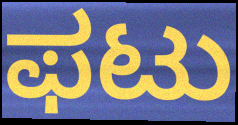
ಫಟು